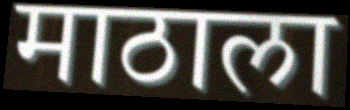
माठाला